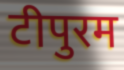
टीपुरम